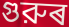
গুৰুৰ